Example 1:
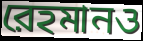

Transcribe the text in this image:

রেহমানও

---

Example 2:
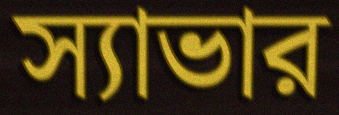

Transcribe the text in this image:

স্যাভার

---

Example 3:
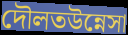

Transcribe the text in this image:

দৌলতউন্নেসা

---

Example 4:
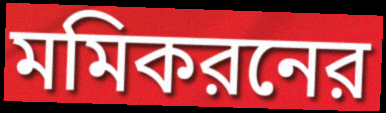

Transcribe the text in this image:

মমিকরনের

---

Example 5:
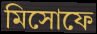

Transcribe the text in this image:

মিসোফে